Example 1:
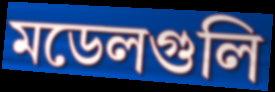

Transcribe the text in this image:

মডেলগুলি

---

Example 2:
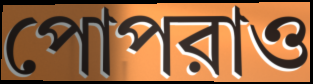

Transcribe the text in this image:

পোপরাও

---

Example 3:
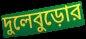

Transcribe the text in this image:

দুলেবুড়োর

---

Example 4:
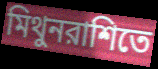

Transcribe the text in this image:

মিথুনরাশিতে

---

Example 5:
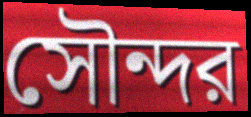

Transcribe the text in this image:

সৌন্দর